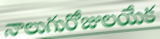
నాలుగురోజులయేక